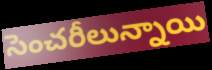
సెంచరీలున్నాయి